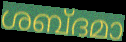
ശബ്ദമാ